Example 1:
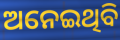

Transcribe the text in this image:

ଅନେଇଥିବି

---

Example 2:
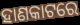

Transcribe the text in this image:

ହାଣକାଟରେ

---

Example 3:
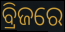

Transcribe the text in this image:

ବ୍ରିଜରେ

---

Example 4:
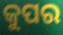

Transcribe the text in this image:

କୁପର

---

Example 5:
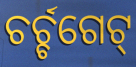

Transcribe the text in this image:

ଚର୍ଚ୍ଚଗେଟ୍